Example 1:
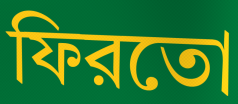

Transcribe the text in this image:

ফিরতো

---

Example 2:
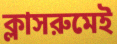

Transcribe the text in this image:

ক্লাসরুমেই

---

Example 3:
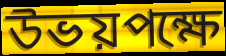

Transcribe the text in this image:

উভয়পক্ষে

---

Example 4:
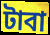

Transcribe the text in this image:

টাবা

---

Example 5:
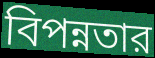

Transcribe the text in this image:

বিপন্নতার